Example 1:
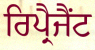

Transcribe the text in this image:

ਰਿਪ੍ਰੈਜੈਂਟ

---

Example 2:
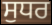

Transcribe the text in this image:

ਸੁਧਰ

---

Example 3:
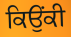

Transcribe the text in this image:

ਕਿਉਂਕੀ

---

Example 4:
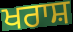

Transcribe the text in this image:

ਖਰਾਸ਼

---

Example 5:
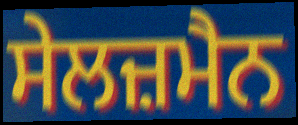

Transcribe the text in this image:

ਸੇਲਜ਼ਮੈਨ